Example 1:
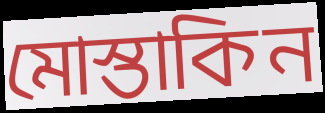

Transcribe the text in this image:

মোস্তাকিন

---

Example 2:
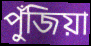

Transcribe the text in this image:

পুঁজিয়া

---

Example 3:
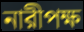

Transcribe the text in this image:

নারীপক্ষ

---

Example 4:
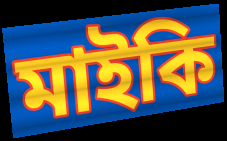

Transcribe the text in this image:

মাইকি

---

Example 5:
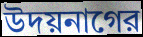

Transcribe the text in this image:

উদয়নাগের